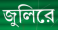
জুলিরে